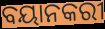
ବୟାନକରୀ